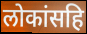
लोकांसहि